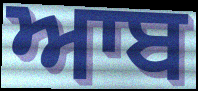
ਆਬ